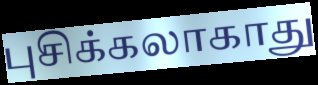
புசிக்கலாகாது